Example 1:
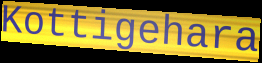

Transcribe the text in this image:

Kottigehara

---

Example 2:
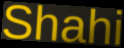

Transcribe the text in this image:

Shahi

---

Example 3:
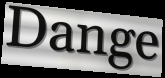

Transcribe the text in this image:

Dange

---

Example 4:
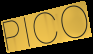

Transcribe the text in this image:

PICO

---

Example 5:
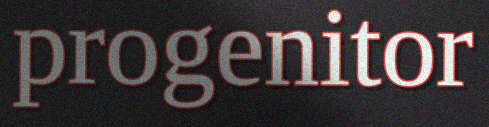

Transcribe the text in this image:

progenitor